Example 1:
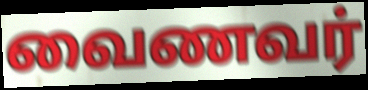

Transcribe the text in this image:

வைணவர்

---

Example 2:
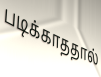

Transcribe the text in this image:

படிக்காததால்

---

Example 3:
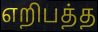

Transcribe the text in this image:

எறிபத்த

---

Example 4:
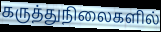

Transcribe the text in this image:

கருத்துநிலைகளில்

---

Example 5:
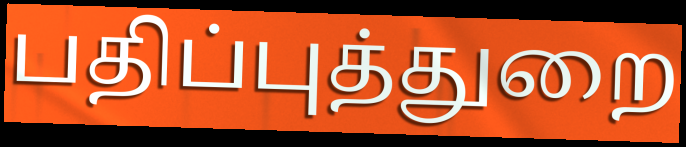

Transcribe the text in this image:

பதிப்புத்துறை